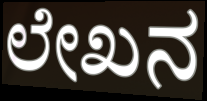
ಲೇಖನ